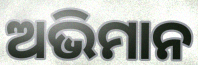
ଅଭିମାନ